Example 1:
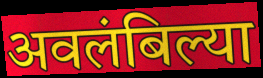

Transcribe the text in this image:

अवलंबिल्या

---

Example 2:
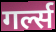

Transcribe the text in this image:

गर्ल्स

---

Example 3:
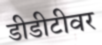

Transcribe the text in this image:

डीडीटीवर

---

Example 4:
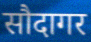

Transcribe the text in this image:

सौदागर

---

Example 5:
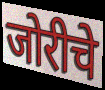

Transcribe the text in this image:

जोरीचे